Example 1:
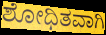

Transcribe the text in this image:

ಶೋಧಿತವಾಗಿ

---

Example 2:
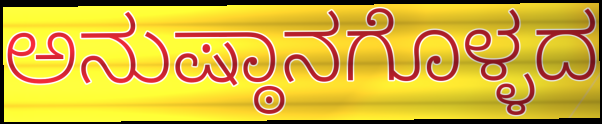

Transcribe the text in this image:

ಅನುಷ್ಠಾನಗೊಳ್ಳದ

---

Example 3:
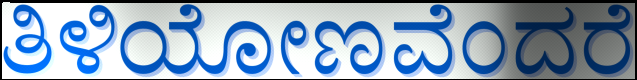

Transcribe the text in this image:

ತಿಳಿಯೋಣವೆಂದರೆ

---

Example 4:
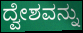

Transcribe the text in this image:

ದ್ವೇಶವನ್ನು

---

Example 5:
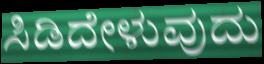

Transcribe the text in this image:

ಸಿಡಿದೇಳುವುದು